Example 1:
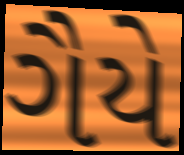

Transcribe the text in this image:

ગૈયે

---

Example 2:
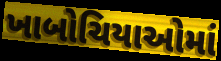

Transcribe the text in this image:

ખાબોચિયાઓમાં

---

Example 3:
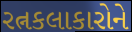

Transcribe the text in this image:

રત્નકલાકારોને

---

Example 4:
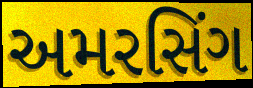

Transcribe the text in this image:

અમરસિંગ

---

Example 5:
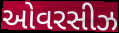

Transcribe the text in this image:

ઓવરસીઝ